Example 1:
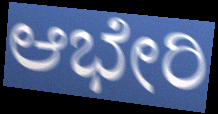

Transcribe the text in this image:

ಆಭೇರಿ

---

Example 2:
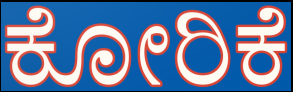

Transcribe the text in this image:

ಕೋರಿಕೆ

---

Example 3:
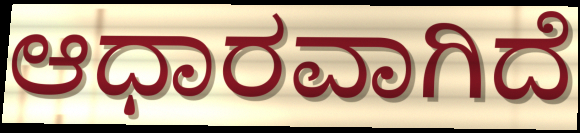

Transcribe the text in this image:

ಆಧಾರವಾಗಿದೆ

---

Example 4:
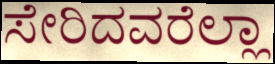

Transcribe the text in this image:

ಸೇರಿದವರೆಲ್ಲಾ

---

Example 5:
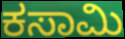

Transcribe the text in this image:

ಕಸಾಮಿ